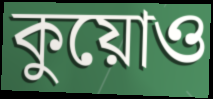
কুয়োও